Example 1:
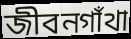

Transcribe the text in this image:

জীবনগাঁথা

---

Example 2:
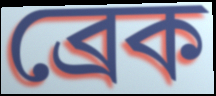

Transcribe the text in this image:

ব্রেক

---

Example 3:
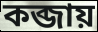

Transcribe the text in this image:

কব্জায়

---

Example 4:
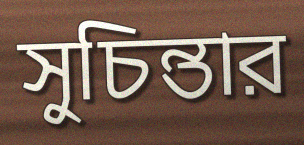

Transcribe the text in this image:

সুচিন্তার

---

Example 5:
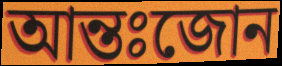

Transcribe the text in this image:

আন্তঃজোন